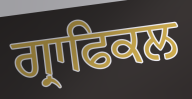
ਗ੍ਰਾਫਿਕਲ